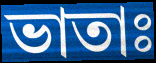
ভাতাঃ